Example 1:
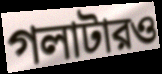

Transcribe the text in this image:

গলাটারও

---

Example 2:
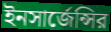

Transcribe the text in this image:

ইনসার্জেন্সির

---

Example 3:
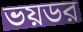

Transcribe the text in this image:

ভয়ডর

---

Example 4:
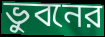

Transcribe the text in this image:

ভুবনের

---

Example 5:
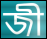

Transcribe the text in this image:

জী